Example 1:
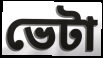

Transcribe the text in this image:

ভেটা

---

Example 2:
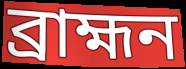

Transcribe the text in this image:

ব্ৰাহ্মন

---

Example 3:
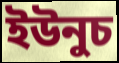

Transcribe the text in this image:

ইউনুচ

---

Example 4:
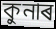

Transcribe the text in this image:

কুনাৰ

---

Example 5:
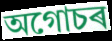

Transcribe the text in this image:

অগোচৰ